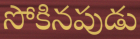
సోకినపుడు